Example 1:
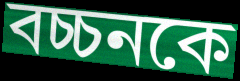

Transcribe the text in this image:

বচ্চনকে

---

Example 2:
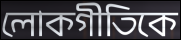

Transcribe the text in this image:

লোকগীতিকে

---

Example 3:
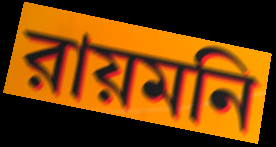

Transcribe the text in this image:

রায়মনি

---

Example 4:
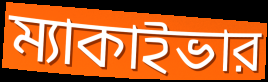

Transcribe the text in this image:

ম্যাকাইভার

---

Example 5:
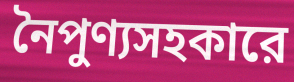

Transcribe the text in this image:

নৈপুণ্যসহকারে